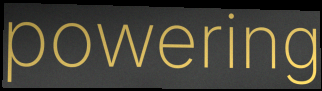
powering